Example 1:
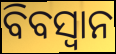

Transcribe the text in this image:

ବିବସ୍ୱାନ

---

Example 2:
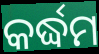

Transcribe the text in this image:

କର୍ଦ୍ଧମ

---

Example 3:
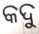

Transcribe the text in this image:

କଦୁ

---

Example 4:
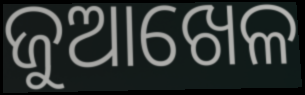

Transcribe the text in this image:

ଜୁଆଖେଳ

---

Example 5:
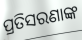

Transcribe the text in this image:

ପ୍ରତିସରଣାଙ୍କ